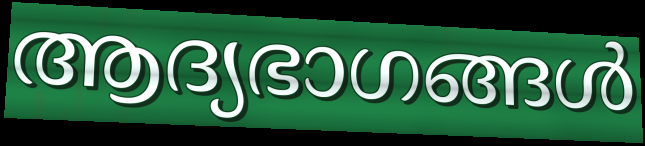
ആദ്യഭാഗങ്ങൾ